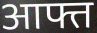
आफ्त